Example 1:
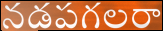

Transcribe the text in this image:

నడపగలరా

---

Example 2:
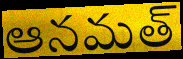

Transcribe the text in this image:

ఆనమత్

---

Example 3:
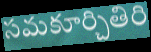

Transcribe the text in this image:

సమకూర్చితిరి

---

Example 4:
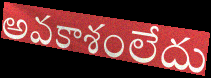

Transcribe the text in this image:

అవకాశంలేదు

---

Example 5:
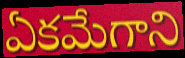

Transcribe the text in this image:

ఏకమేగాని